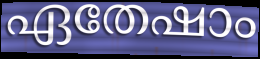
ഏതേഷാം